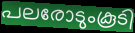
പലരോടുംകൂടി